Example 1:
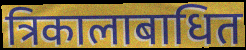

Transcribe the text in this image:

त्रिकालाबाधित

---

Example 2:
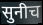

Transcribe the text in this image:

सुनीच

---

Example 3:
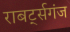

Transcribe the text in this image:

राबर्ट्सगंज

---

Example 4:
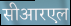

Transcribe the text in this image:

सीआरएल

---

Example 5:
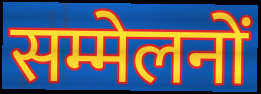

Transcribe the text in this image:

सम्‍मेलनों